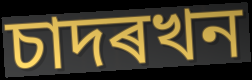
চাদৰখন